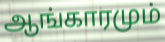
ஆங்காரமும்